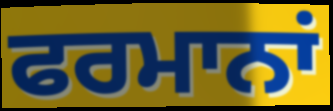
ਫਰਮਾਨਾਂ